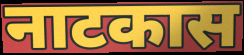
नाटकास